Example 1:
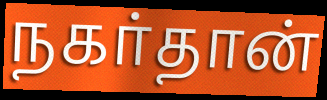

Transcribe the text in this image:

நகர்தான்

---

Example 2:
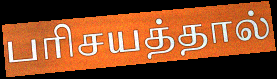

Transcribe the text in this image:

பரிசயத்தால்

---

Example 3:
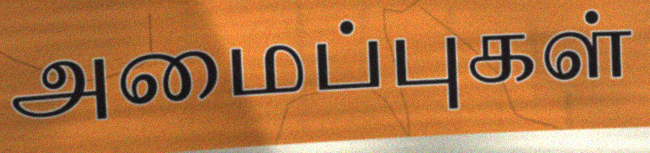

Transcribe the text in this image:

அமைப்புகள்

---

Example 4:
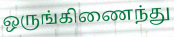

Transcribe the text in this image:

ஒருங்கிணைந்து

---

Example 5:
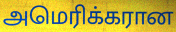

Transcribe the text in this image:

அமெரிக்கரான